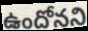
ఉందోనని